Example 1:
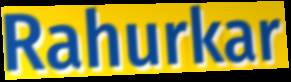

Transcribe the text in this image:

Rahurkar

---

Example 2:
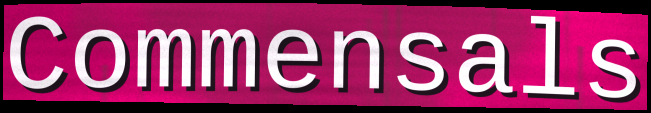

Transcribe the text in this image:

Commensals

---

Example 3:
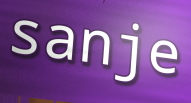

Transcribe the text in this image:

sanje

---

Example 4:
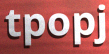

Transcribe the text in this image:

tpopj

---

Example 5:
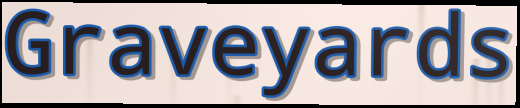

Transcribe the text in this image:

Graveyards